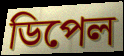
ডিপেল